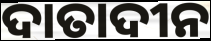
ଦାତାଦୀନ